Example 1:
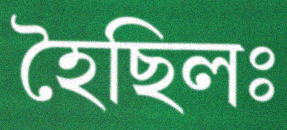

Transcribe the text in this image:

হৈছিলঃ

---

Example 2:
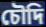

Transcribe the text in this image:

চৌদি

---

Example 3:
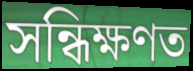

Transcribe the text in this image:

সন্ধিক্ষণত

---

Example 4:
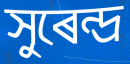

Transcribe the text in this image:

সুৰেন্দ্ৰ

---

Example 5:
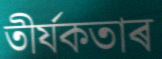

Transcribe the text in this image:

তীৰ্যকতাৰ